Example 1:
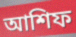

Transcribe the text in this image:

আশিফ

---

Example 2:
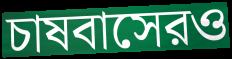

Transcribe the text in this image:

চাষবাসেরও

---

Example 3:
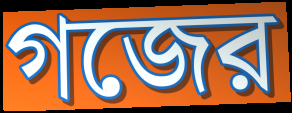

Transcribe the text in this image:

গজের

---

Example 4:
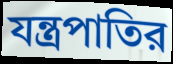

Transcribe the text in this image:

যন্ত্রপাতির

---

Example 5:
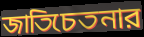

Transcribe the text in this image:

জাতিচেতনার